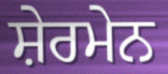
ਸ਼ੇਰਮੇਨ